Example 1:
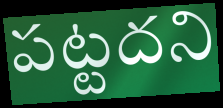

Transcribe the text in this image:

పట్టదని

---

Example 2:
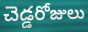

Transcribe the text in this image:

చెడ్డరోజులు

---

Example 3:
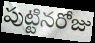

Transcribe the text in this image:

పుట్టినరోజు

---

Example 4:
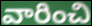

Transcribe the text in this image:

వారించి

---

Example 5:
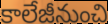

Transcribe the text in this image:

కాలేజీనుంచి